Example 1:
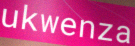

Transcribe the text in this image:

ukwenza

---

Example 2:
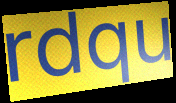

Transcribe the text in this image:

rdqu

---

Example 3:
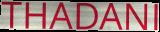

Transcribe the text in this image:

THADANI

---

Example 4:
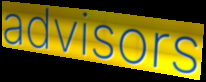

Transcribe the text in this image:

advisors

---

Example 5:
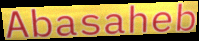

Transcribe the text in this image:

Abasaheb